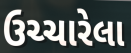
ઉચ્ચારેલા